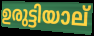
ഉരുട്ടിയാല്